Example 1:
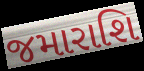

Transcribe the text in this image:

જમારાશિ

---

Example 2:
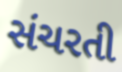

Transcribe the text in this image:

સંચરતી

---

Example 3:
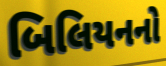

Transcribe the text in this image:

બિલિયનનો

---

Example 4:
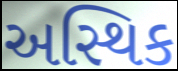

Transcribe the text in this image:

અસ્થિક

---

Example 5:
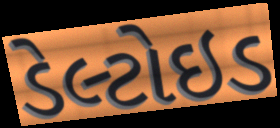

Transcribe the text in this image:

ડેલ્ટોઇડ